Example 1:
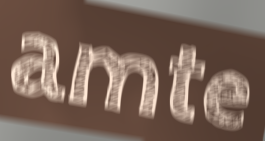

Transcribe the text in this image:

amte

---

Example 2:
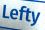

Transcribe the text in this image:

Lefty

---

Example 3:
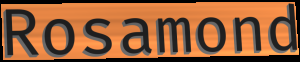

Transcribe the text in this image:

Rosamond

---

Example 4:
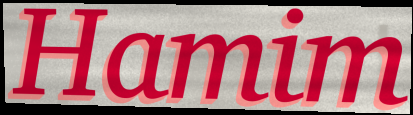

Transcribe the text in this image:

Hamim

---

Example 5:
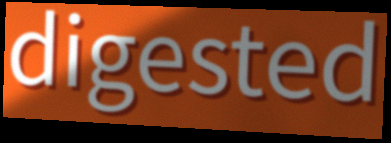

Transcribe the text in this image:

digested